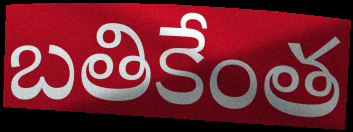
బతికేంత